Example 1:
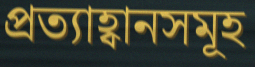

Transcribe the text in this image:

প্ৰত্যাহ্বানসমূহ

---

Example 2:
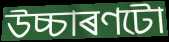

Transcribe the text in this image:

উচ্চাৰণটো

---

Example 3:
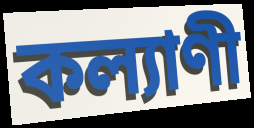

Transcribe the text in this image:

কল্যাণী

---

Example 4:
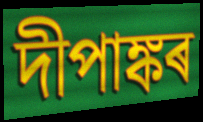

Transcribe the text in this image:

দীপাঙ্কৰ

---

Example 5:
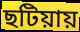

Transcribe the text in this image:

ছটিয়ায়